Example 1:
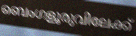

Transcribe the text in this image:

ബെംഗളൂരുവിലേക്ക്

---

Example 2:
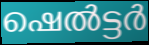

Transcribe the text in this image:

ഷെൽട്ടർ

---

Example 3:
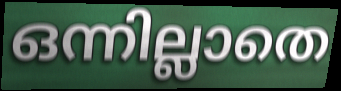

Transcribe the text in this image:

ഒന്നില്ലാതെ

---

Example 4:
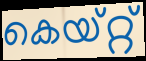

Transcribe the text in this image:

കെയ്റ്റ്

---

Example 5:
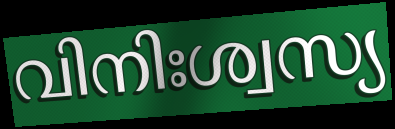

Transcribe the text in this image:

വിനിഃശ്വസ്യ